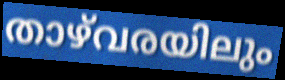
താഴ്‌വരയിലും